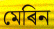
মেৰিন